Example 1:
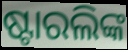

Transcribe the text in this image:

ଷ୍ଟାରଲିଙ୍କ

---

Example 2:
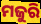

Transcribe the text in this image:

ମଜୁରି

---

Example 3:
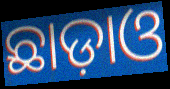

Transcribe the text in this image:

ଛାଡ଼ାଓ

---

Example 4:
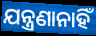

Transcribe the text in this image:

ଯନ୍ତ୍ରଣାନାହିଁ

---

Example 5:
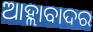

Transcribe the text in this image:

ଆହ୍ଲାବାଦର